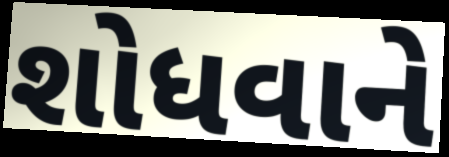
શોધવાને